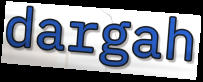
dargah